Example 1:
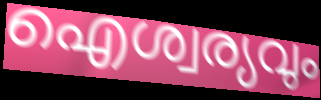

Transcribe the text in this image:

ഐശ്വര്യവും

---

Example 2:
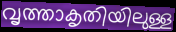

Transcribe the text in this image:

വൃത്താകൃതിയിലുള്ള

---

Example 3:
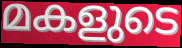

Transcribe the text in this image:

മകളുടെ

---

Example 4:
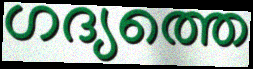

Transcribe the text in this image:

ഗദ്യത്തെ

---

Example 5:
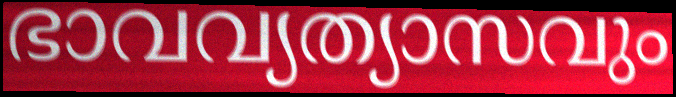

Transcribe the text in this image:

ഭാവവ്യത്യാസവും